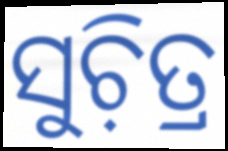
ସୁଚ଼ିତ୍ର